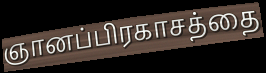
ஞானப்பிரகாசத்தை